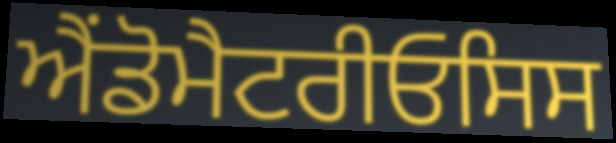
ਐਂਡੋਮੈਟਰੀਓਸਿਸ